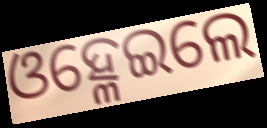
ଓହ୍ଳେଇଲେ